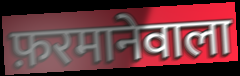
फ़रमानेवाला